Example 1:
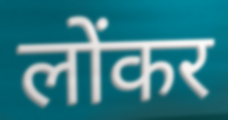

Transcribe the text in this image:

लोंकर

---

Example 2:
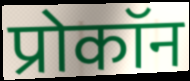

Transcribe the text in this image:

प्रोकॉन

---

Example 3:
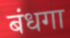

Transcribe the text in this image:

बंधगा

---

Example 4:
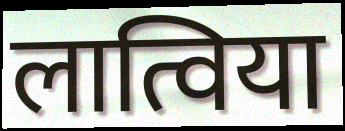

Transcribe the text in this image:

लात्विया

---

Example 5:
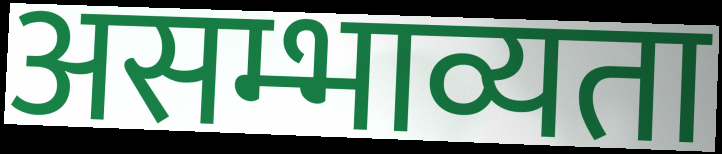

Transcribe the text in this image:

असम्भाव्यता